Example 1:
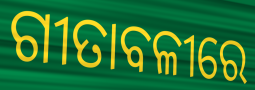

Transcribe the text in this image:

ଗୀତାବଳୀରେ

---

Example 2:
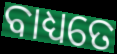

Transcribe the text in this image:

ବାଧ୍ଯତେ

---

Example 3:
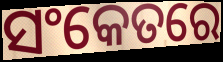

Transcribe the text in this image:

ସଂକେତରେ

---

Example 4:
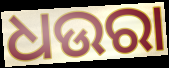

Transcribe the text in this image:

ଧଉରା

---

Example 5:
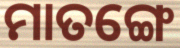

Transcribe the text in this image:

ମାତଙ୍ଗେ